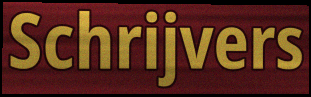
Schrijvers